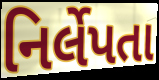
નિર્લેપતા